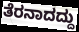
ತೆರನಾದದ್ದು